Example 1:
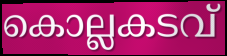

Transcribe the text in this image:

കൊല്ലകടവ്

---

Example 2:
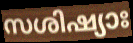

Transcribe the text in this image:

സശിഷ്യാഃ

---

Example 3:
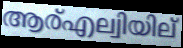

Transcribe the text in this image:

ആര്എല്വിയില്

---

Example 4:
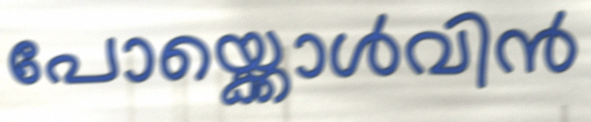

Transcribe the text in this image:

പോയ്ക്കൊൾവിൻ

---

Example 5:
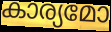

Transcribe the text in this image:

കാര്യമോ